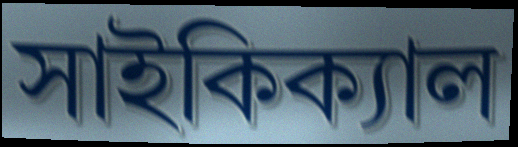
সাইকিক্যাল